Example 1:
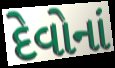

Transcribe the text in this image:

દેવોનાં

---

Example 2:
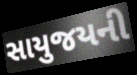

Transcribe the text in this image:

સાયુજયની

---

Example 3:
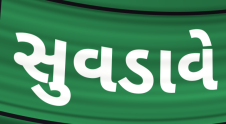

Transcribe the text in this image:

સુવડાવે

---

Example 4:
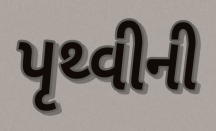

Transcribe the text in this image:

પૃથ્વીની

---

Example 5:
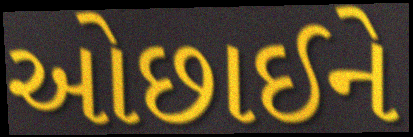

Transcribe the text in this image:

ઓછાઈને